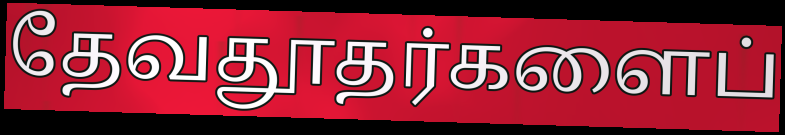
தேவதூதர்களைப்